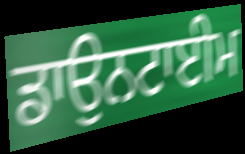
ਡਾਉਨਟਾਈਮ